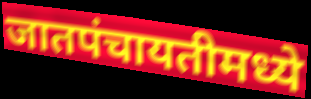
जातपंचायतीमध्ये